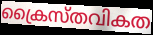
ക്രൈസ്തവികത